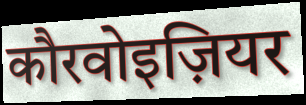
कौरवोइज़ियर